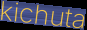
kichuta